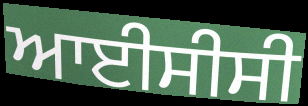
ਆਈਸੀਸੀ